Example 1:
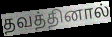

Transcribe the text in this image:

தவத்தினால்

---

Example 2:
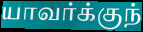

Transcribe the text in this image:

யாவர்க்குந்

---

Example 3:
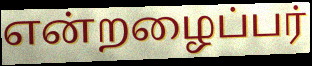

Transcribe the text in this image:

என்றழைப்பர்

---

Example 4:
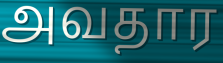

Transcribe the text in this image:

அவதார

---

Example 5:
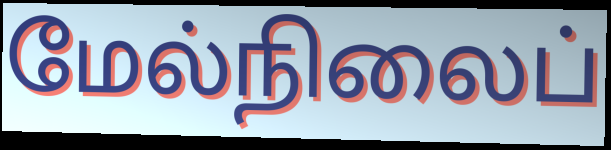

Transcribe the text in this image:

மேல்நிலைப்